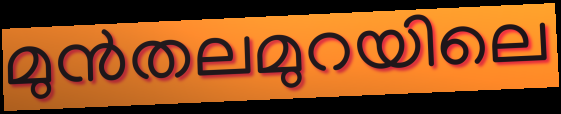
മുൻതലമുറയിലെ